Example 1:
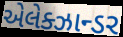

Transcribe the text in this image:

એલેક્ઝાન્ડર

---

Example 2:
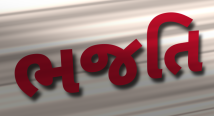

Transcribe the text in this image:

ભજતિ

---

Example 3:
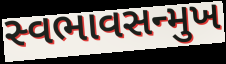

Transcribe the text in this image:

સ્વભાવસન્મુખ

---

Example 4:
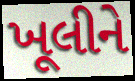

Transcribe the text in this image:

ખૂલીને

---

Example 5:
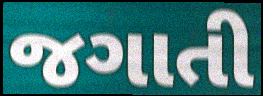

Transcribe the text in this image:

જગાતી